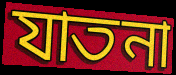
যাতনা